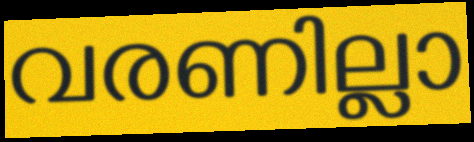
വരണില്ലാ